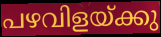
പഴവിളയ്ക്കു